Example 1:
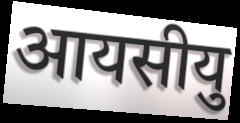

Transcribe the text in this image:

आयसीयु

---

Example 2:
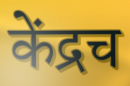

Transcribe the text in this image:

केंद्रच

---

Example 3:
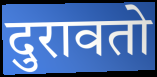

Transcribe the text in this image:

दुरावतो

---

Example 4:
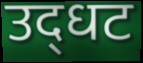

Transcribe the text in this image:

उद्धट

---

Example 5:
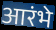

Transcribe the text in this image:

आरंभे